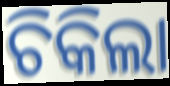
ଚିକିଲା